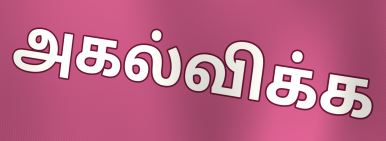
அகல்விக்க